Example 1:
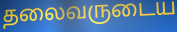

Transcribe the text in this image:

தலைவருடைய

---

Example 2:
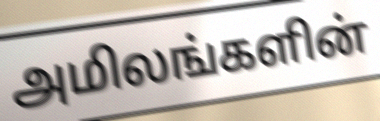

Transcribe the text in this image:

அமிலங்களின்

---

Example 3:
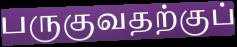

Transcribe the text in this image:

பருகுவதற்குப்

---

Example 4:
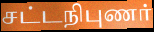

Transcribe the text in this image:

சட்டநிபுணர்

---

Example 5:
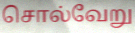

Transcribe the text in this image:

சொல்வேறு